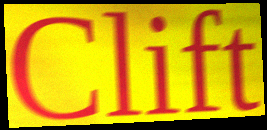
Clift